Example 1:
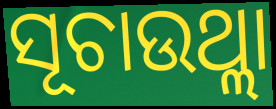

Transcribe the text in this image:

ସୂଚାଉଥ୍ଲା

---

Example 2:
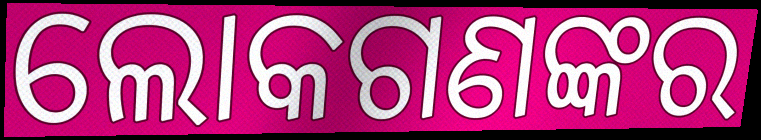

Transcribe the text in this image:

ଲୋକଗଣଙ୍କର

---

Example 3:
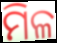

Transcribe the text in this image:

ମିଳ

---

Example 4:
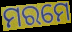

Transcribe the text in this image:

ମରମେ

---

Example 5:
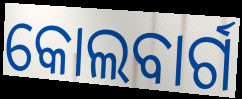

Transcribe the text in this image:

କୋଲବାର୍ଗ